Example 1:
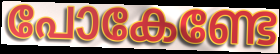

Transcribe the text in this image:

പോകേണ്ടേ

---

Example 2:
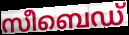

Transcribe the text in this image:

സീബെഡ്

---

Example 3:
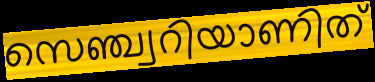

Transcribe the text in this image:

സെഞ്ച്വറിയാണിത്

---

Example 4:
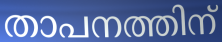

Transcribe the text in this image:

താപനത്തിന്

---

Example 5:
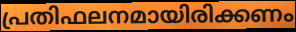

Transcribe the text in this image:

പ്രതിഫലനമായിരിക്കണം